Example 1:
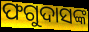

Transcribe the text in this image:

ଫଗୁଦାସଙ୍କ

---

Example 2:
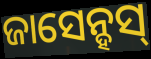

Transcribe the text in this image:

ଜାସେନ୍ହସ୍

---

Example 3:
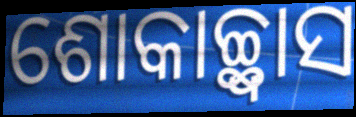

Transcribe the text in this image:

ଶୋକାଚ୍ଛ୍ୱାସ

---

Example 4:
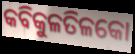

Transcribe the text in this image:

କବିକୁଳତିଳକୋ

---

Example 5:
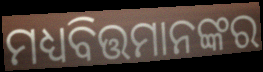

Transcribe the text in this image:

ମଧ୍ୟବିତ୍ତମାନଙ୍କର